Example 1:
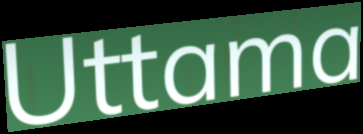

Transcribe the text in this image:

Uttama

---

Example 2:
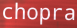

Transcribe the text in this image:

chopra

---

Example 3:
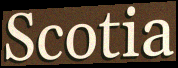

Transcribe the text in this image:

Scotia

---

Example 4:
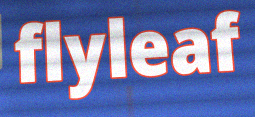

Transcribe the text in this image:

flyleaf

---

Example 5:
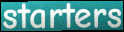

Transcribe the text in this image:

starters